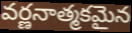
వర్ణనాత్మకమైన